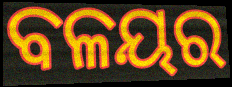
ବଳୟର